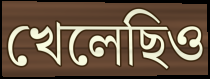
খেলেছিও